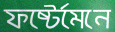
ফৰ্ষ্টেমেনে